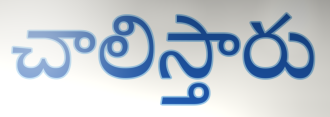
చాలిస్తారు